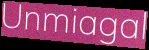
Unmiagal